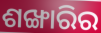
ଶଙ୍ଖାରିର